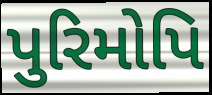
પુરિમોપિ